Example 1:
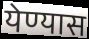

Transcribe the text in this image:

येण्यास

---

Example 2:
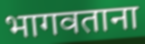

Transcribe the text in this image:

भागवताना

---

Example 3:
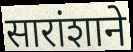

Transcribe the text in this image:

सारांशाने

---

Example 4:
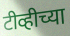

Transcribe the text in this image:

टीव्हीच्या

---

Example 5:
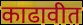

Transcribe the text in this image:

काढावीत